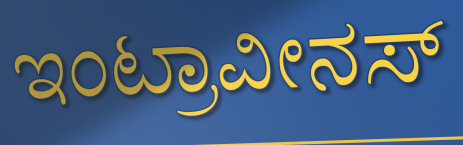
ಇಂಟ್ರಾವೀನಸ್